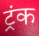
ट्रंक